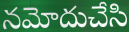
నమోదుచేసి